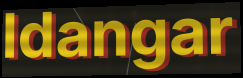
Idangar